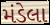
મંડેલા